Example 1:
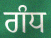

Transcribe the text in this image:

ਗੰਧ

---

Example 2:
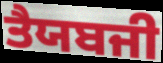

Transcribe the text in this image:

ਤੈਯਬਜੀ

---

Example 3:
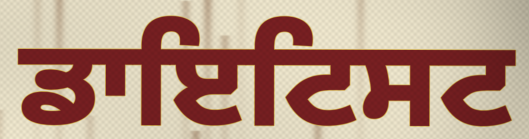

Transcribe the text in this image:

ਡਾਇਟਿਸਟ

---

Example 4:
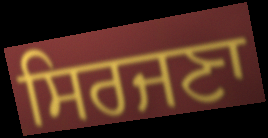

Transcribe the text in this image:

ਸਿਰਜਣਾ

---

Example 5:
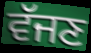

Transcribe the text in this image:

ਵੱਜਣ